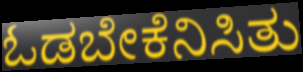
ಓಡಬೇಕೆನಿಸಿತು